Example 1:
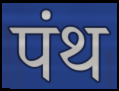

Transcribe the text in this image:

पंथ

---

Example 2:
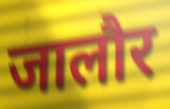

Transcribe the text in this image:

जालौर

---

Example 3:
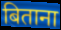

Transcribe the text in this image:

बिताना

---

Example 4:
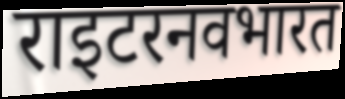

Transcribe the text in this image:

राइटरनवभारत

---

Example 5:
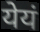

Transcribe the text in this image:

येयं